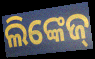
ଲିଙ୍କେଜ୍